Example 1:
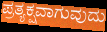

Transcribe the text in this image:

ಪ್ರತ್ಯಕ್ಷವಾಗುವುದು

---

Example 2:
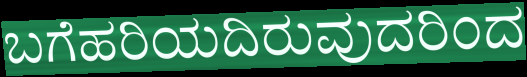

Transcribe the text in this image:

ಬಗೆಹರಿಯದಿರುವುದರಿಂದ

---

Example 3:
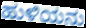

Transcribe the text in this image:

ಹುಳಿಯನು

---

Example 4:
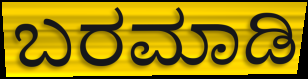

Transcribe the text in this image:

ಬರಮಾಡಿ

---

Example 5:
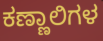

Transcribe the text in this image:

ಕಣ್ಣಾಲಿಗಳ